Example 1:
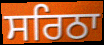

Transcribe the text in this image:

ਸਰਿਠਾ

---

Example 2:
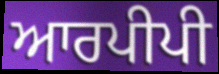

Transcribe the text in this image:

ਆਰਪੀਪੀ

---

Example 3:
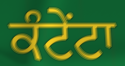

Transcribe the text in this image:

ਕੰਟੇਂਟਾ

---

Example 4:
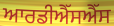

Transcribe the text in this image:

ਆਰਡੀਐੱਸਐੱਸ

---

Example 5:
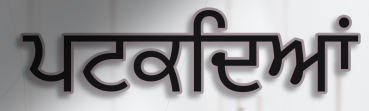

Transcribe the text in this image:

ਪਟਕਦਿਆਂ